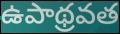
ఉపాథ్రవత